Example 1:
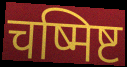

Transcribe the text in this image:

चष्मिष्ट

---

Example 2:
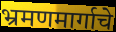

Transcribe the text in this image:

भ्रमणमार्गाचे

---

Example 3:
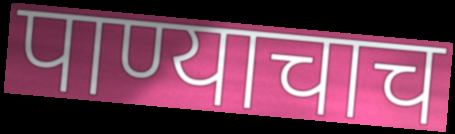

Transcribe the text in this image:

पाण्याचाच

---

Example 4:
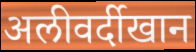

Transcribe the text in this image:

अलीवर्दीखान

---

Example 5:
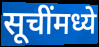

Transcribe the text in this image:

सूचींमध्ये